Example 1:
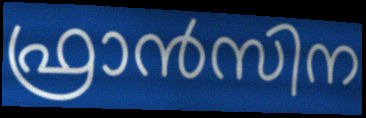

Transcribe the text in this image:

ഫ്രാൻസിന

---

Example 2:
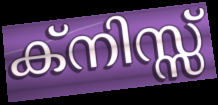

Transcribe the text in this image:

ക്നിസ്സ്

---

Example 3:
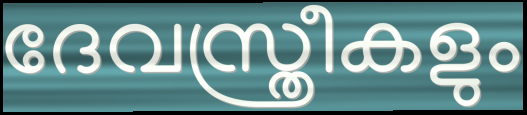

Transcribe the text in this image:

ദേവസ്ത്രീകളും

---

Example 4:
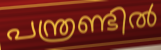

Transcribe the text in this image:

പന്ത്രണ്ടിൽ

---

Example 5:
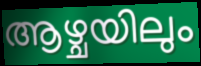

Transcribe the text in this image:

ആഴ്ചയിലും